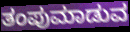
ತಂಪುಮಾಡುವ